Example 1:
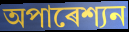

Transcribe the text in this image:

অপাৰেশ্যন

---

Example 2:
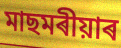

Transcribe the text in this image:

মাছমৰীয়াৰ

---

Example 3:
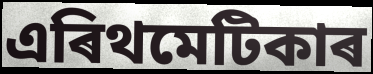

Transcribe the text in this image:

এৰিথমেটিকাৰ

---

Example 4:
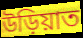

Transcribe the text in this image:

উড়িয়াত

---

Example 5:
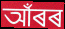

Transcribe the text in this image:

আঁৰৰ